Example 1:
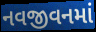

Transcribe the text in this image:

નવજીવનમાં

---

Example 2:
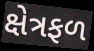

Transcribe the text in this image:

ક્ષેત્રફળ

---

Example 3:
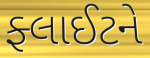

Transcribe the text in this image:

ફ્લાઈટને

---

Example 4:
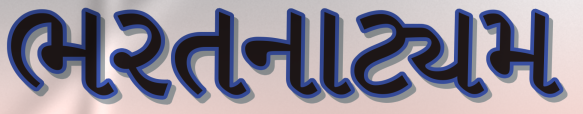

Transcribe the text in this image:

ભરતનાટ્યમ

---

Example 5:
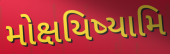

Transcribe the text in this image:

મોક્ષયિષ્યામિ